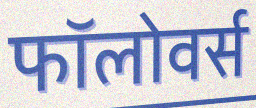
फॉलोवर्स